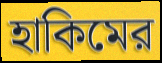
হাকিমের